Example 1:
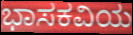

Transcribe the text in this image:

ಭಾಸಕವಿಯ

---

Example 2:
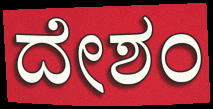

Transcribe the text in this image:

ದೇಶಂ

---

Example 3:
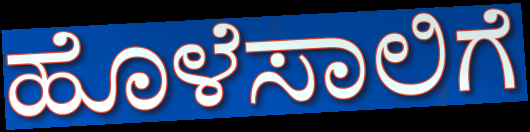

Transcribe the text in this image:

ಹೊಳೆಸಾಲಿಗೆ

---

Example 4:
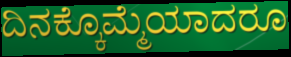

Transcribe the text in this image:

ದಿನಕ್ಕೊಮ್ಮೆಯಾದರೂ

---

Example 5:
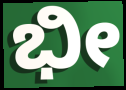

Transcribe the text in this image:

ಭೀ